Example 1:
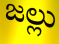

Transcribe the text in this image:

జల్లు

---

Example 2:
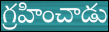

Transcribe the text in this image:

గ్రహించాడు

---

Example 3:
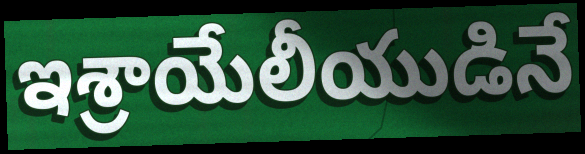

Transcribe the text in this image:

ఇశ్రాయేలీయుడినే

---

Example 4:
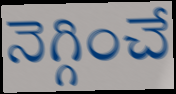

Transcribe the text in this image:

నెగ్గించే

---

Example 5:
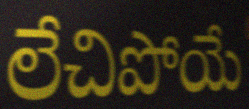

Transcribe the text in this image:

లేచిపోయే